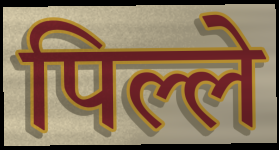
पिल्ले